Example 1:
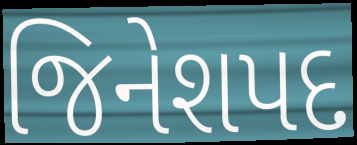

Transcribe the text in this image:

જિનેશપદ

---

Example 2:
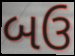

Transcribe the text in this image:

બઉ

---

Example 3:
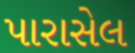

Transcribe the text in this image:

પારાસેલ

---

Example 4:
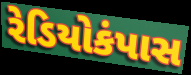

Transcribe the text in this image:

રેડિયોકંપાસ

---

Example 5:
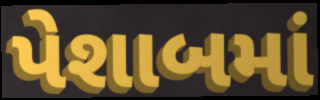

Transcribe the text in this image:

પેશાબમાં